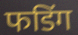
फडिंग